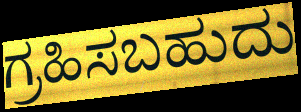
ಗ್ರಹಿಸಬಹುದು